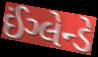
ઈંગ્લેન્ડે